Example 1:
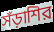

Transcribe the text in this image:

সঁড়াশির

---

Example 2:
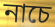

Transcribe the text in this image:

নাচে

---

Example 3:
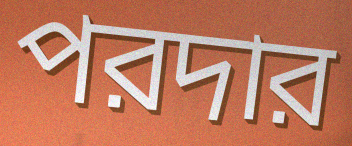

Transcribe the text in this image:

পরদার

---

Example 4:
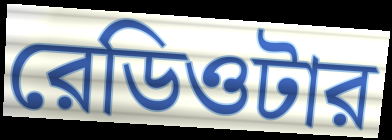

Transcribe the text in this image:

রেডিওটার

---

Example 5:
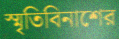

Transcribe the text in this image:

স্মৃতিবিনাশের